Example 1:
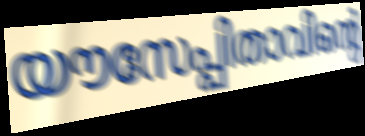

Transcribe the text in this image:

യൗസേപ്പിതാവിന്റെ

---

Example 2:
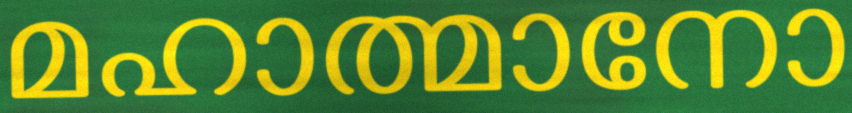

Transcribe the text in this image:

മഹാത്മാനോ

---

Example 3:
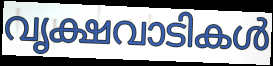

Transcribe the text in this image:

വൃക്ഷവാടികൾ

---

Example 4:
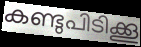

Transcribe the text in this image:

കണ്ടുപിടിക്കൂ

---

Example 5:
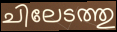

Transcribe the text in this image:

ചിലേടത്തു